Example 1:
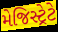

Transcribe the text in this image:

મેજિસ્ટ્રેટે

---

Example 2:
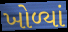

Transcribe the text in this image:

ખોળ્યાં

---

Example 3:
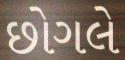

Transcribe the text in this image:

છોગલે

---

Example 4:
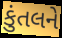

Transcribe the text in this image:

કુંતલને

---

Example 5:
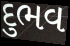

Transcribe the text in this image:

દુભવ